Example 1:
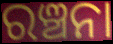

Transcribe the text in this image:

ରଞ୍ଚନା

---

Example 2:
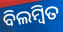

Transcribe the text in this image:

ବିଲମ୍ୱିତ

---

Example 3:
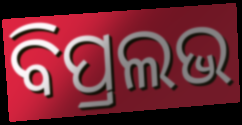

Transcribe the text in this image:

ବିପ୍ରଲଭ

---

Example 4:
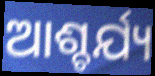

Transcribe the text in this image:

ଆଶ୍ଚର୍ଯ୍ୟ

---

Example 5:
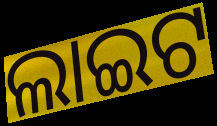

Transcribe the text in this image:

ଲାଇଟ